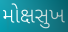
મોક્ષસુખ